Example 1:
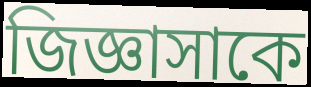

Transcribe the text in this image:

জিজ্ঞাসাকে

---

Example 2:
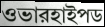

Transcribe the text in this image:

ওভারহাইপড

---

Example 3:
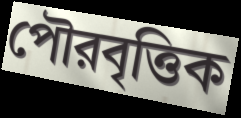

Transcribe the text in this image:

পৌরবৃত্তিক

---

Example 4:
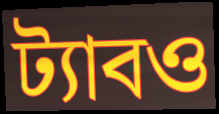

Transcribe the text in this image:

ট্যাবও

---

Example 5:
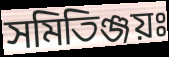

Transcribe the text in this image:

সমিতিঞ্জয়ঃ